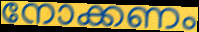
നോക്കണം